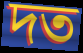
দত